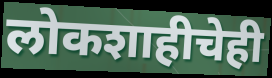
लोकशाहीचेही